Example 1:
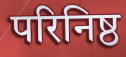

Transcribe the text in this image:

परिनिष्ठ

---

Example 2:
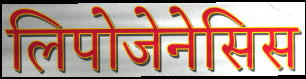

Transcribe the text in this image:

लिपोजेनेसिस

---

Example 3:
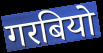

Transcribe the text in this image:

गरबियो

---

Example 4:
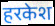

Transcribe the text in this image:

हरकेश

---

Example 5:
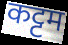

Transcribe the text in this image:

कट्टम